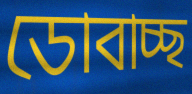
ডোবাচ্ছ